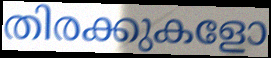
തിരക്കുകളോ